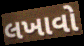
લખાવો